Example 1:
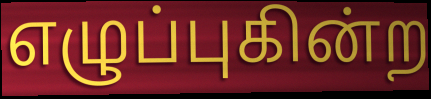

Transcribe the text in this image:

எழுப்புகின்ற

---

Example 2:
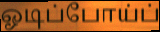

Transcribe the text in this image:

ஓடிப்போய்ப்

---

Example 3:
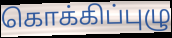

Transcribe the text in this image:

கொக்கிப்புழு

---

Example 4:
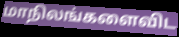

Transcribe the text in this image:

மாநிலங்களைவிட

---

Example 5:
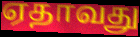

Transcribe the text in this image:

ஏதாவது